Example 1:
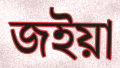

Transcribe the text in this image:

জইয়া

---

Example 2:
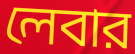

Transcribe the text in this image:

লেবার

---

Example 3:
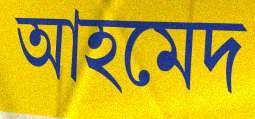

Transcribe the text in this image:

আহমেদ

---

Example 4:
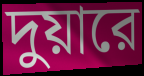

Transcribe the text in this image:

দুয়ারে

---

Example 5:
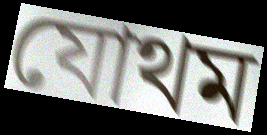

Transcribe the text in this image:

যোথম